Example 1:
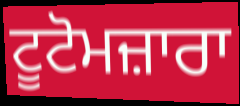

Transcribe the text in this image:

ਟੂਟੋਮਜ਼ਾਰਾ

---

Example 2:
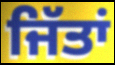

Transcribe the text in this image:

ਜਿੱਤਾਂ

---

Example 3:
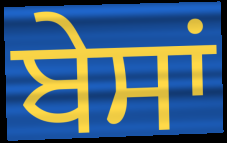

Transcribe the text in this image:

ਬੇਸਾਂ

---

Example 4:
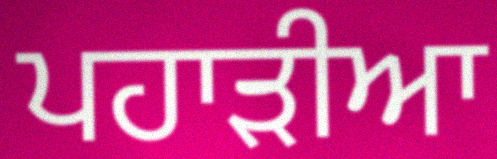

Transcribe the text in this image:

ਪਹਾੜੀਆ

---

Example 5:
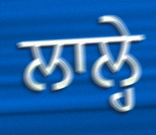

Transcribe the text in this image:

ਲਾਲ੍ਹੇ